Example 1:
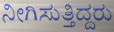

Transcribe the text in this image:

ನೀಗಿಸುತ್ತಿದ್ದರು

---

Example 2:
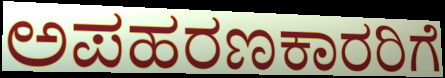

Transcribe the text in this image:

ಅಪಹರಣಕಾರರಿಗೆ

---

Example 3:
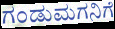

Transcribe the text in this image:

ಗಂಡುಮಗನಿಗೆ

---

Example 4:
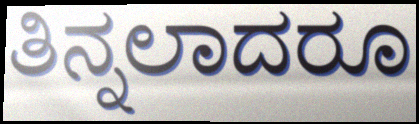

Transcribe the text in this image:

ತಿನ್ನಲಾದರೂ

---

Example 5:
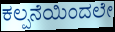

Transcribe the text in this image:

ಕಲ್ಪನೆಯಿಂದಲೇ